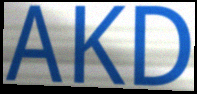
AKD